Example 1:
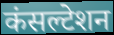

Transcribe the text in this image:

कंसल्टेशन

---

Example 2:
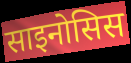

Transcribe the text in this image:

साइनोसिस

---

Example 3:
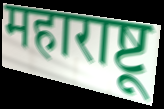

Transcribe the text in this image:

महाराष्टू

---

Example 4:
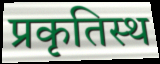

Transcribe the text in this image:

प्रकृतिस्थ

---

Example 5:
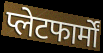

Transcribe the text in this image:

प्लेटफार्मों